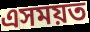
এসময়ত